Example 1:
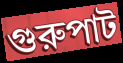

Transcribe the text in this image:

গুরুপাট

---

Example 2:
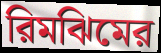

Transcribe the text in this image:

রিমঝিমের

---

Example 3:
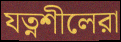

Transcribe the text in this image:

যত্নশীলেরা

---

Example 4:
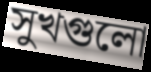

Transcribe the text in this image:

সুখগুলো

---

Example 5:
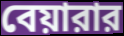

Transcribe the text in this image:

বেয়ারার